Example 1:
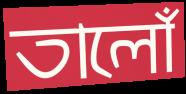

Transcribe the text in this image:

তালোঁ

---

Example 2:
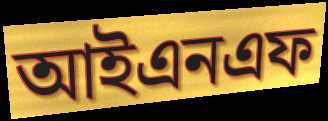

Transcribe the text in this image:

আইএনএফ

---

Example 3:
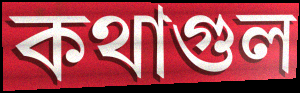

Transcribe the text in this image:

কথাগুল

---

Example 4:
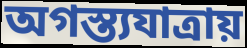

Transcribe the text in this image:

অগস্ত্যযাত্রায়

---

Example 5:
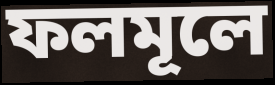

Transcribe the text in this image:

ফলমূলে